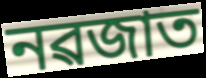
নৱজাত